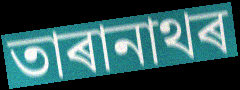
তাৰানাথৰ